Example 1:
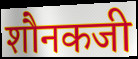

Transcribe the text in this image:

शौनकजी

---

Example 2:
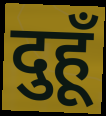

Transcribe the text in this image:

दुहूँ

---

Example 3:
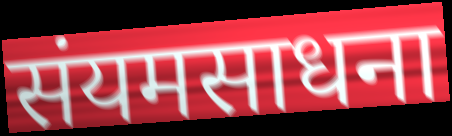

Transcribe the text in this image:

संयमसाधना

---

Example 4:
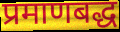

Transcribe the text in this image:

प्रमाणबद्ध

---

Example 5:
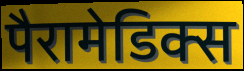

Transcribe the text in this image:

पैरामेडिक्स